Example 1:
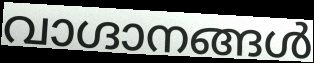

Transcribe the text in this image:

വാഗ്ദാനങ്ങൾ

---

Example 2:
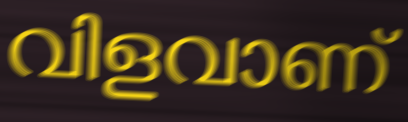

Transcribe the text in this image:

വിളവാണ്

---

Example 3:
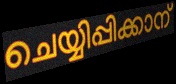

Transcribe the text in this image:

ചെയ്യിപ്പിക്കാന്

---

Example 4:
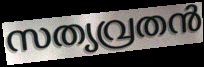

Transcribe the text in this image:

സത്യവ്രതൻ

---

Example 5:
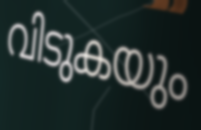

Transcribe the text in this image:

വിടുകയും